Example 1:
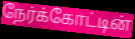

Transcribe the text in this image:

நேர்க்கோட்டின்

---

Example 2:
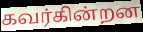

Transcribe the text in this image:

கவர்கின்றன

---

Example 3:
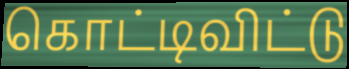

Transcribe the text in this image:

கொட்டிவிட்டு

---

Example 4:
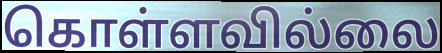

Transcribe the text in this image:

கொள்ளவில்லை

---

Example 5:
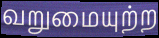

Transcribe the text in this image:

வறுமையுற்ற